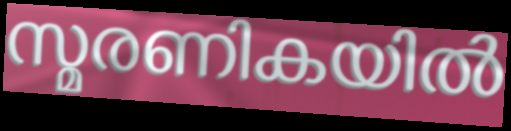
സ്മരണികയിൽ